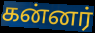
கன்னர்